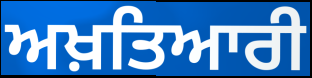
ਅਖ਼ਤਿਆਰੀ